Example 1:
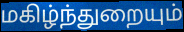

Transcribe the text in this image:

மகிழ்ந்துறையும்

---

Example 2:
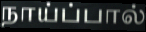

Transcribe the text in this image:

நாய்ப்பால்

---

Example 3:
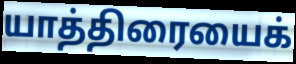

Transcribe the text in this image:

யாத்திரையைக்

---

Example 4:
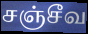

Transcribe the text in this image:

சஞ்சீவ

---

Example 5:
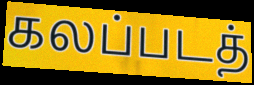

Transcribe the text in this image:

கலப்படத்